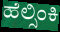
ಹೆಲ್ಸಿಂಕಿ